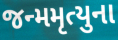
જન્મમૃત્યુના